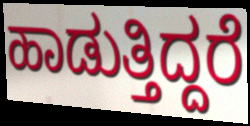
ಹಾಡುತ್ತಿದ್ದರೆ